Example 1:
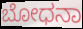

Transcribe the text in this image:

ಬೋಧನಾ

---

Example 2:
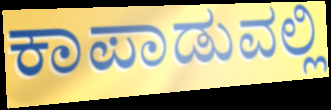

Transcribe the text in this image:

ಕಾಪಾಡುವಲ್ಲಿ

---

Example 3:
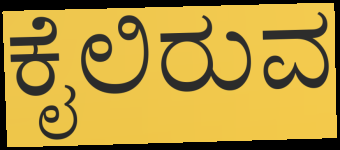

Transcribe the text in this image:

ಕೈಲಿರುವ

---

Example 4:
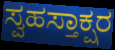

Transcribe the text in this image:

ಸ್ವಹಸ್ತಾಕ್ಷರ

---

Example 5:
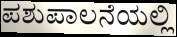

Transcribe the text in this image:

ಪಶುಪಾಲನೆಯಲ್ಲಿ